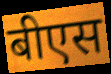
बीएस